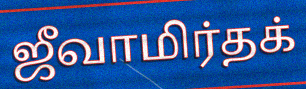
ஜீவாமிர்தக்